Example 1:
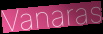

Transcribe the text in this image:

Vanaras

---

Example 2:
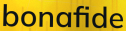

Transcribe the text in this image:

bonafide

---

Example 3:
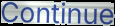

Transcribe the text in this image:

Continue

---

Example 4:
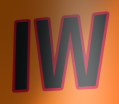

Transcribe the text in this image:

IW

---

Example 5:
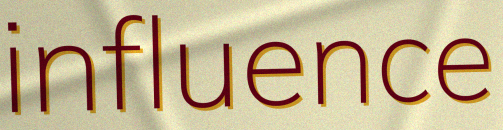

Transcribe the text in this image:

influence